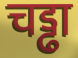
चड्ढा